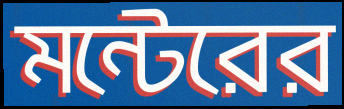
মন্টেরের